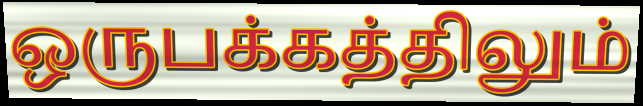
ஒருபக்கத்திலும்